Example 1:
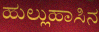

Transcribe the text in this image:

ಹುಲ್ಲುಹಾಸಿನ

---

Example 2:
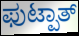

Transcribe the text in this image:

ಫುಟ್ಪಾತ್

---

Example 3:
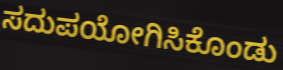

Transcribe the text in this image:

ಸದುಪಯೋಗಿಸಿಕೊಂಡು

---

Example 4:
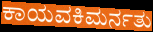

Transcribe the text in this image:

ಕಾಯವಕಿಮರ್ನತು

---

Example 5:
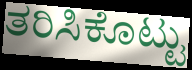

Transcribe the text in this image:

ತರಿಸಿಕೊಟ್ಟು